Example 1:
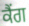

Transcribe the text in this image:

ਕੈਂਗ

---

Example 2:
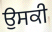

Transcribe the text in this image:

ਉਸਕੀ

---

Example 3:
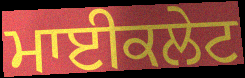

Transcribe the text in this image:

ਮਾਈਕਲੇਟ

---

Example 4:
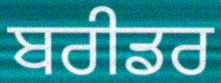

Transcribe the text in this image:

ਬਰੀਡਰ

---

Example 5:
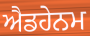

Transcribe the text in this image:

ਐਡਹੇਨਮ